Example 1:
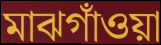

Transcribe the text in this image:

মাঝগাঁওয়া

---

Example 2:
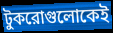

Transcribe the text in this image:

টুকরোগুলোকেই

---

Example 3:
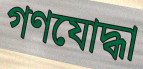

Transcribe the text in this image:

গণযোদ্ধা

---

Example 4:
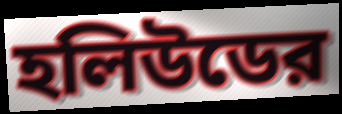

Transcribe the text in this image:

হলিউডের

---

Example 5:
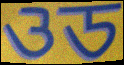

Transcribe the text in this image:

ওড